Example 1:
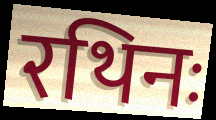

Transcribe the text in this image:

रथिनः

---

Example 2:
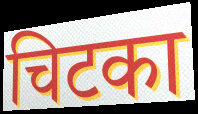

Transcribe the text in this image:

चिटका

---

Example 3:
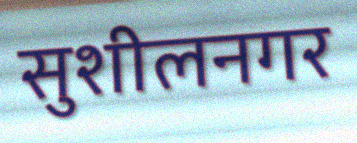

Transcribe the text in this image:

सुशीलनगर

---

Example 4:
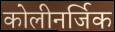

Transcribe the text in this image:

कोलीनर्जिक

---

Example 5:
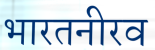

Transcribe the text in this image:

भारतनीरव